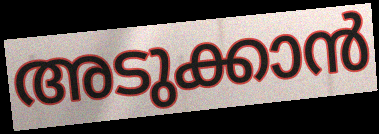
അടുക്കാൻ